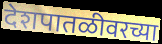
देशपातळीवरच्या